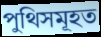
পুথিসমূহত